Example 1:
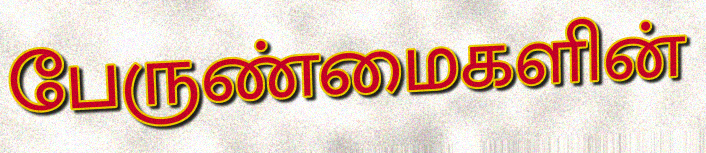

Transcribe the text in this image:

பேருண்மைகளின்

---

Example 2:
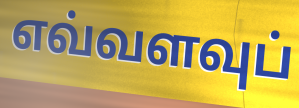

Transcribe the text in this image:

எவ்வளவுப்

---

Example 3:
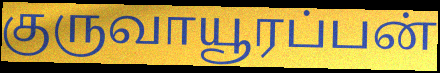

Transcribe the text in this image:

குருவாயூரப்பன்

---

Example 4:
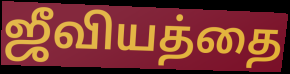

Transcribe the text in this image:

ஜீவியத்தை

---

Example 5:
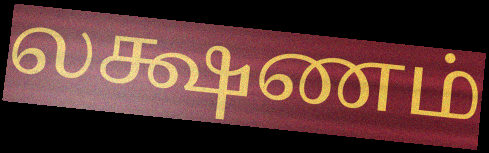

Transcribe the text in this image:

லக்ஷணம்